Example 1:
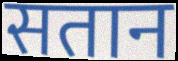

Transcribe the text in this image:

सतान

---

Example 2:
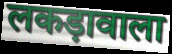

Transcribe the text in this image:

लकड़ावाला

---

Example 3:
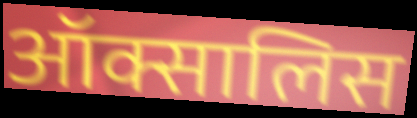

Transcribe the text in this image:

ऑक्सालिस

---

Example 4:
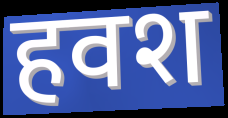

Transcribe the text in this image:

हवश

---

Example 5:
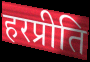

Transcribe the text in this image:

हरप्रीति